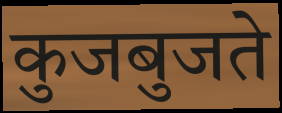
कुजबुजते